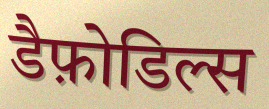
डैफ़ोडिल्स